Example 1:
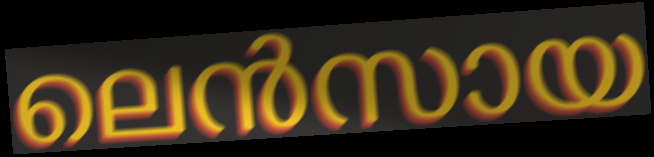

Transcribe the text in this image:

ലെൻസായ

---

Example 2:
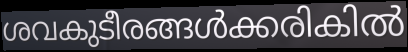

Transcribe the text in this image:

ശവകുടീരങ്ങൾക്കരികിൽ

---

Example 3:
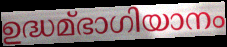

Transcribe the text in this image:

ഉദ്ധമ്ഭാഗിയാനം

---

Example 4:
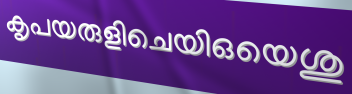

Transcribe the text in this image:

കൃപയരുളിചെയിഒയെശു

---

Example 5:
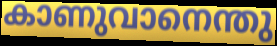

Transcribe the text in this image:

കാണുവാനെന്തു